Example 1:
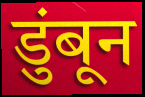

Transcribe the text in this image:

डुंबून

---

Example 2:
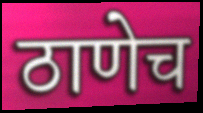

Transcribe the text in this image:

ठाणेच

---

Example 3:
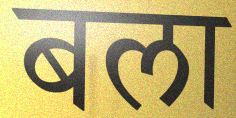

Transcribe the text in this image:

बला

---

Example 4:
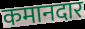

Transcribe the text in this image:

कमानदार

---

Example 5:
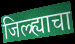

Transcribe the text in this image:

जिल्ह्याचा